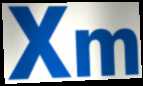
Xm